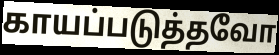
காயப்படுத்தவோ